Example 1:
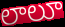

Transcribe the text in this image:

లాలూ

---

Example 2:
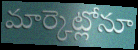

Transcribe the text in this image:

మార్కెట్లోనూ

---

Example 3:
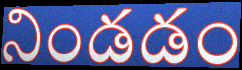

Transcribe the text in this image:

నిండడం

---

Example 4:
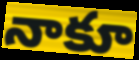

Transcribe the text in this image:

నాకూ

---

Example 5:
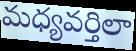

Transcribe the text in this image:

మధ్యవర్తిలా